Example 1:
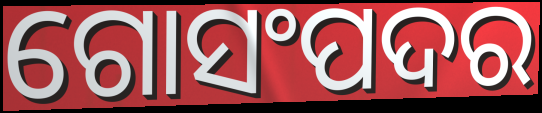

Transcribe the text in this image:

ଗୋସଂପଦର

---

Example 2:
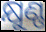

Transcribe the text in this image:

କ୍ଷୁଣ୍ଣ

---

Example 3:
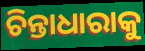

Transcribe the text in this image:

ଚିନ୍ତାଧାରାକୁ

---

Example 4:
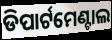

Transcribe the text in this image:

ଡିପାର୍ଟମେଣ୍ଟାଲ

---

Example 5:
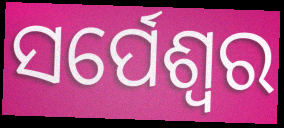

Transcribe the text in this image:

ସର୍ପେଶ୍ଵର